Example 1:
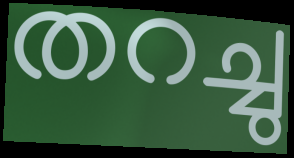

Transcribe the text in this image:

തറച്ചു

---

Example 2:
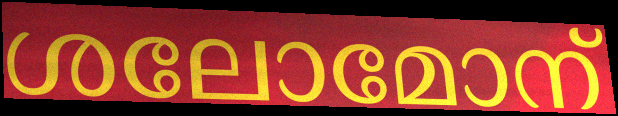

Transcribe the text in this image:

ശലോമോന്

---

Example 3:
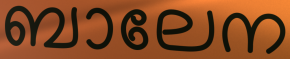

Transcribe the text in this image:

ബാലേന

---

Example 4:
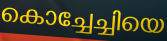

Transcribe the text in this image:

കൊച്ചേച്ചിയെ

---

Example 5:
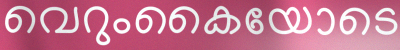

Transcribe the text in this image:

വെറുംകൈയോടെ